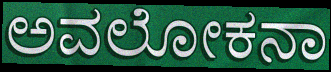
ಅವಲೋಕನಾ